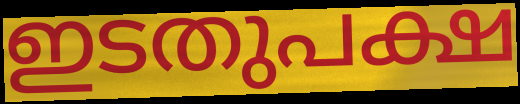
ഇടതുപക്ഷ